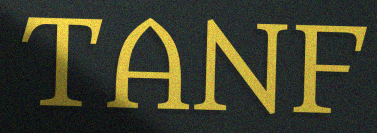
TANF